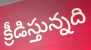
క్రీడిస్తున్నది